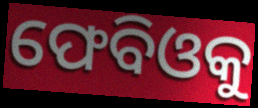
ଫେବିଓକୁ